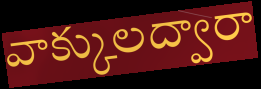
వాక్కులద్వారా